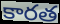
కారత